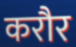
करौर